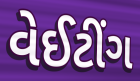
વેઈટીંગ